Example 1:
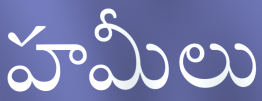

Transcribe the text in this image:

హమీలు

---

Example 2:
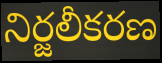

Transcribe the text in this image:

నిర్జలీకరణ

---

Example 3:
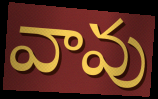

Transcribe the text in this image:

వావు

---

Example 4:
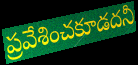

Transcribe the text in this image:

ప్రవేశించకూడదనీ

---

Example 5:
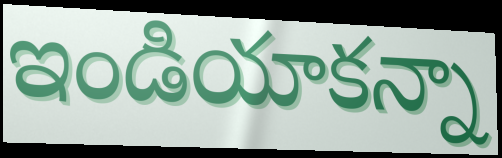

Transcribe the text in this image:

ఇండియాకన్నా